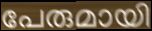
പേരുമായി